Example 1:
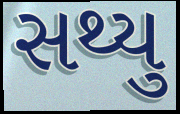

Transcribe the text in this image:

સથ્યુ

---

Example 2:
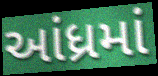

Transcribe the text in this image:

આંધ્રમાં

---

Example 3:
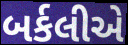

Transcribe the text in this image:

બર્કલીએ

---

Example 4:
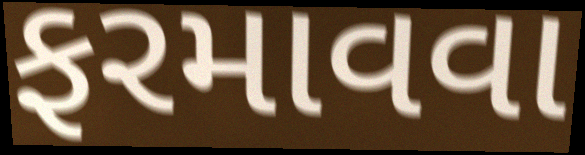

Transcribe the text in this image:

ફરમાવવા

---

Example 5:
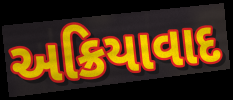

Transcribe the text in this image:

અક્રિયાવાદ